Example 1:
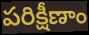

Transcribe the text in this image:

పరిక్షీణాం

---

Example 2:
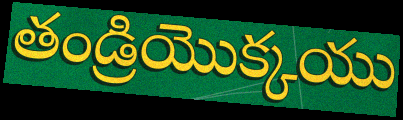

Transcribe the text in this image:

తండ్రియొక్కయు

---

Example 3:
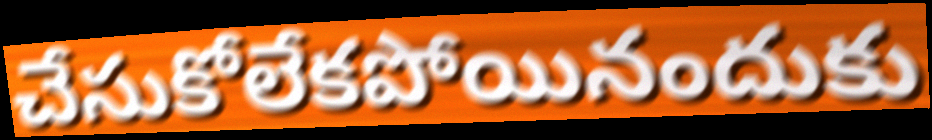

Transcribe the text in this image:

చేసుకోలేకపోయినందుకు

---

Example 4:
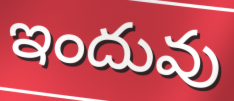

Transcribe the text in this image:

ఇందువు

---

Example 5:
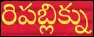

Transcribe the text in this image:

రిపబ్లిక్ను